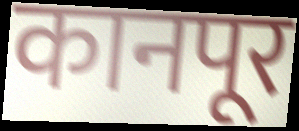
कानपूर